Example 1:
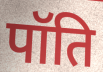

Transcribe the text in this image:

पॉति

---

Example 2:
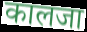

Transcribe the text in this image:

कालजा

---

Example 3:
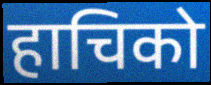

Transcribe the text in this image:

हाचिको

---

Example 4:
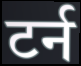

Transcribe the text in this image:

टर्न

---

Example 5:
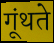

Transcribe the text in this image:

गूंथते